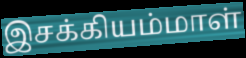
இசக்கியம்மாள்